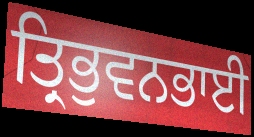
ਤ੍ਰਿਭੁਵਨਭਾਈ